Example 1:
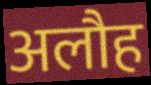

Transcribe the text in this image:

अलौह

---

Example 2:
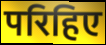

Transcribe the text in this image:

परिहिए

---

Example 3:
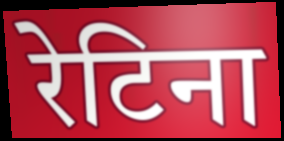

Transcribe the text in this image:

रेटिना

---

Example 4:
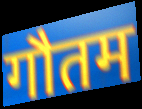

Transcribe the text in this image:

गौतम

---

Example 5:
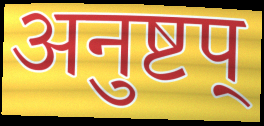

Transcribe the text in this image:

अनुष्टप्